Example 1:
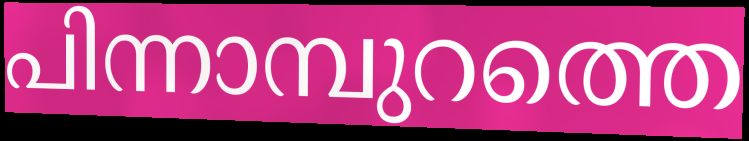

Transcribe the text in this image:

പിന്നാമ്പുറത്തെ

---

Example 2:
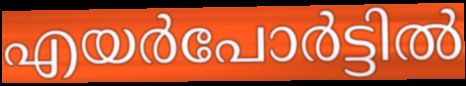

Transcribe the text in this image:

എയർപോർട്ടിൽ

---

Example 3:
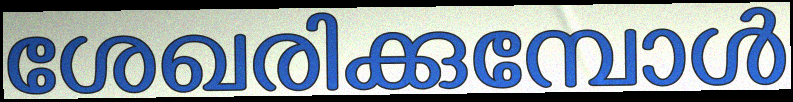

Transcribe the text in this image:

ശേഖരിക്കുമ്പോൾ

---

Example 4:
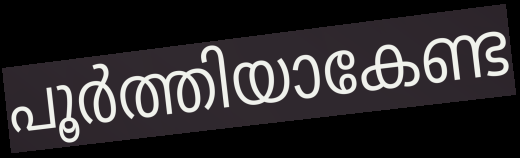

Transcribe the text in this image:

പൂർത്തിയാകേണ്ട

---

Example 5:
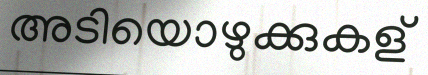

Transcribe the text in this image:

അടിയൊഴുക്കുകള്